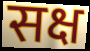
सक्ष